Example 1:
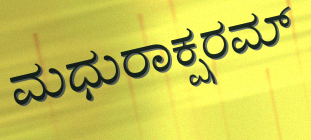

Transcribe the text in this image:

ಮಧುರಾಕ್ಷರಮ್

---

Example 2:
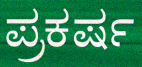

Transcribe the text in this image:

ಪ್ರಕರ್ಷ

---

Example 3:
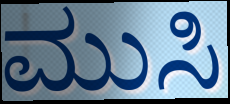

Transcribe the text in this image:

ಮುಸಿ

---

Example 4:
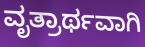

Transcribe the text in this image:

ವೃತ್ರಾರ್ಥವಾಗಿ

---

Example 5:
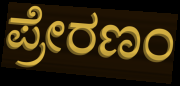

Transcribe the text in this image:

ಪ್ರೇರಣಂ